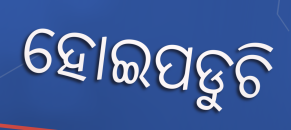
ହୋଇପଡୁଚି